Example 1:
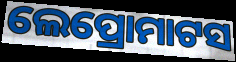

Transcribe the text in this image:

ଲେପ୍ରୋମାଟସ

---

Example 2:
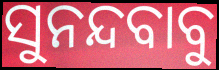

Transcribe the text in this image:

ସୁନନ୍ଦବାବୁ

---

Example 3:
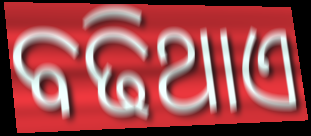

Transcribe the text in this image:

ବଢିଥାଏ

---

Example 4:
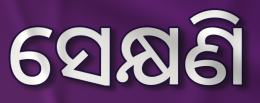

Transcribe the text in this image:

ସେକ୍ଷଣି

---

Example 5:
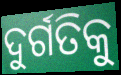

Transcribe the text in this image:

ଦୁର୍ଗତିକୁ